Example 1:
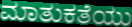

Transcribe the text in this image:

ಮಾತುಕತೆಯು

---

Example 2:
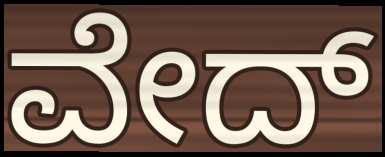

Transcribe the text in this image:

ವೇದ್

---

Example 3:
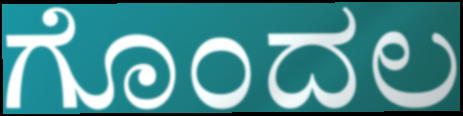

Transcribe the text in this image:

ಗೊಂದಲ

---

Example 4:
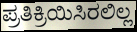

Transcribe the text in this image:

ಪ್ರತಿಕ್ರಿಯಿಸಿರಲಿಲ್ಲ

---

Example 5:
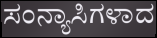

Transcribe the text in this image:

ಸಂನ್ಯಾಸಿಗಳಾದ